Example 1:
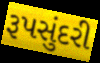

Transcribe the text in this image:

રૂપસુંદરી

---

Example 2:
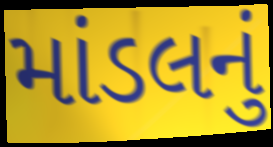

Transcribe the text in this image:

માંડલનું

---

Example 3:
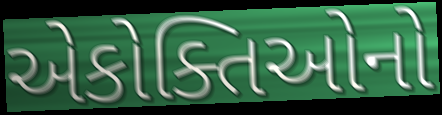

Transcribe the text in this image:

એકોક્તિઓનો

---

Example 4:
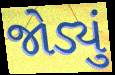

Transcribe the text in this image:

જોડ્યું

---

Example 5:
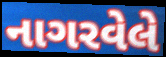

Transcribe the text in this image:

નાગરવેલે